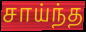
சாய்ந்த